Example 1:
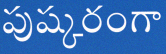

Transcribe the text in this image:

పుష్కరంగా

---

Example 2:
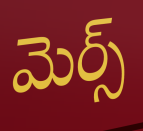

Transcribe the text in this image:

మెర్స్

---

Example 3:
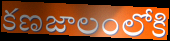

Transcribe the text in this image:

కణజాలంలోకి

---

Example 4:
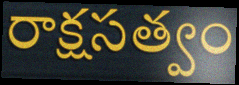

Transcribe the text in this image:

రాక్షసత్వం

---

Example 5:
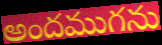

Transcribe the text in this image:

అందముగను